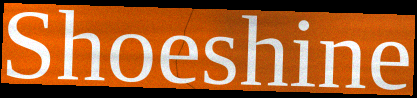
Shoeshine